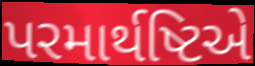
પરમાર્થષ્ટિએ